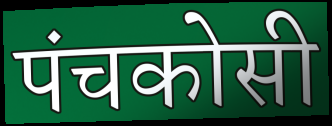
पंचकोसी